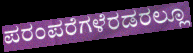
ಪರಂಪರೆಗಳೆರಡರಲ್ಲೂ